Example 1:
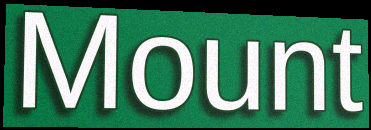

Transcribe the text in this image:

Mount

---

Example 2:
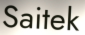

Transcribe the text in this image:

Saitek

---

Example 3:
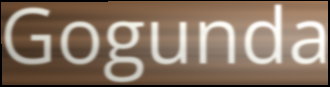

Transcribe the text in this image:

Gogunda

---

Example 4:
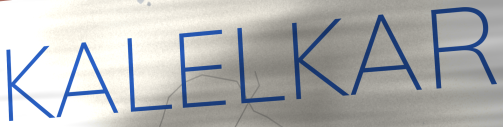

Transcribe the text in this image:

KALELKAR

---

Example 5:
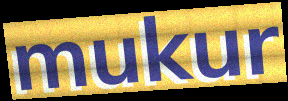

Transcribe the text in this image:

mukur